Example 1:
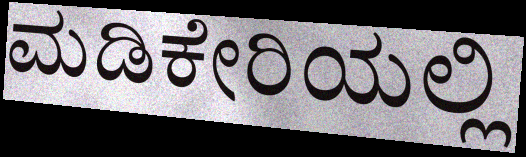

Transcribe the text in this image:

ಮಡಿಕೇರಿಯಲ್ಲಿ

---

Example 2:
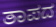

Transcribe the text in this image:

ತಾಪದ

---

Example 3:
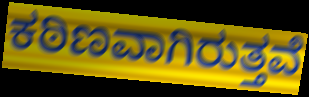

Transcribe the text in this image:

ಕಠಿಣವಾಗಿರುತ್ತವೆ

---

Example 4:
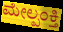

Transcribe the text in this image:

ಮೇಲ್ಪಂಕ್ತಿ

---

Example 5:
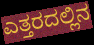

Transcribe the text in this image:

ಎತ್ತರದಲ್ಲಿನ